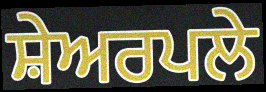
ਸ਼ੇਅਰਪਲੇ